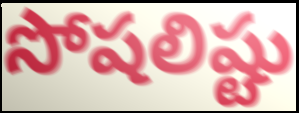
సోషలిష్టు